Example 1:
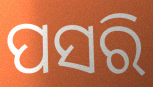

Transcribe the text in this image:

ପସରି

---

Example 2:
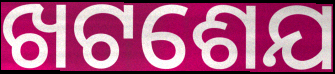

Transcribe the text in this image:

ଖଟଶେଯ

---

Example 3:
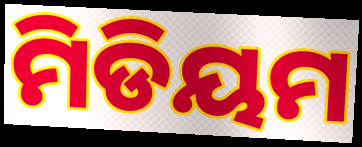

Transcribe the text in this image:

ମିଡିୟମ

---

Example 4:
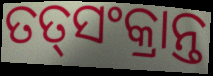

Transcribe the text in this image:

ତତ୍‌ସଂକ୍ରାନ୍ତ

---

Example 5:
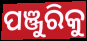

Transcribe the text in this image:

ପଞ୍ଜୁରିକୁ